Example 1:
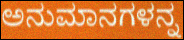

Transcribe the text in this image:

ಅನುಮಾನಗಳನ್ನ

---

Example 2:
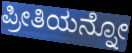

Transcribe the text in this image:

ಪ್ರೀತಿಯನ್ನೋ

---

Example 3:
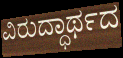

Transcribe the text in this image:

ವಿರುದ್ಧಾರ್ಥದ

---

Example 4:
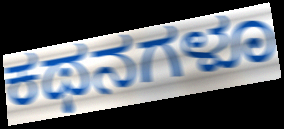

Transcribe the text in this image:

ಕಥನಗಳೂ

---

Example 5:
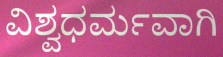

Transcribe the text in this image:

ವಿಶ್ವಧರ್ಮವಾಗಿ